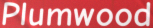
Plumwood